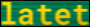
latet